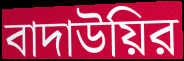
বাদাউয়ির